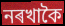
নৰখাকৈ